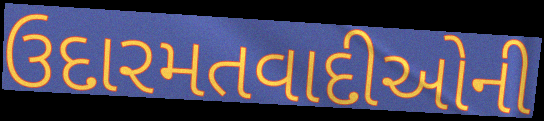
ઉદારમતવાદીઓની